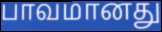
பாவமானது